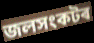
জলসংকটৰ